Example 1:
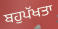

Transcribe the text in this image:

ਬਹੁਪੱਖਤਾ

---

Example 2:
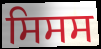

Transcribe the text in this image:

ਸਿਸਸ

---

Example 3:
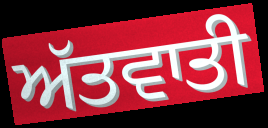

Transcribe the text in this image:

ਅੱਤਵਾਤੀ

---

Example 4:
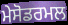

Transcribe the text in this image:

ਮੇਸੋਡਰਮਲ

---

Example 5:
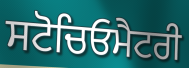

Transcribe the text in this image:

ਸਟੋਚਿਓਮੈਟਰੀ